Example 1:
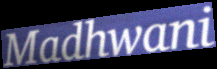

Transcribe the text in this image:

Madhwani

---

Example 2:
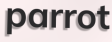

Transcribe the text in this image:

parrot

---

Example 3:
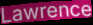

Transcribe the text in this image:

Lawrence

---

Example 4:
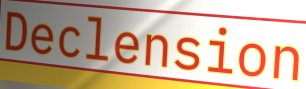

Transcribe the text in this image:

Declension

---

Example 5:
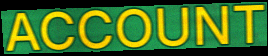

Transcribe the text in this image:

ACCOUNT